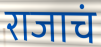
राजाचं